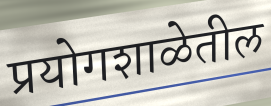
प्रयोगशाळेतील